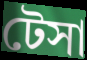
টেসা